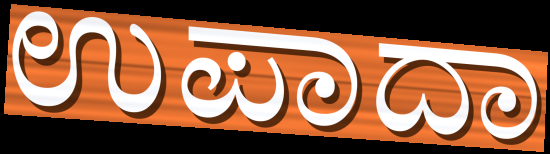
ಉಪಾದಾ